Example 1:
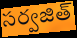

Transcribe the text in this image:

సర్వజిత్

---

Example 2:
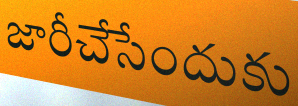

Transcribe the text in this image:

జారీచేసేందుకు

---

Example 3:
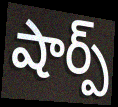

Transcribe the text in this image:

షార్ప్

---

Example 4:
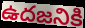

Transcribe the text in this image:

ఉదజనికి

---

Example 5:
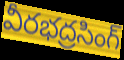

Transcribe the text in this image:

వీరభద్రసింగ్